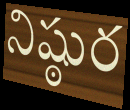
నిష్ఠుర